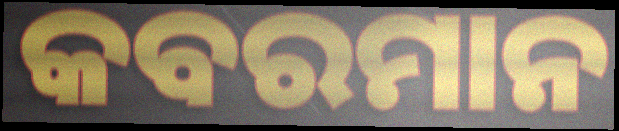
କବରମାନ